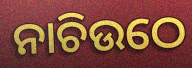
ନାଚିଉଠେ